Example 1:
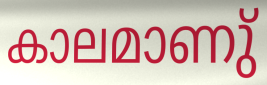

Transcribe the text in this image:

കാലമാണു്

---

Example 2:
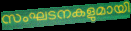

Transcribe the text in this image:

സംഘടനകളുമായി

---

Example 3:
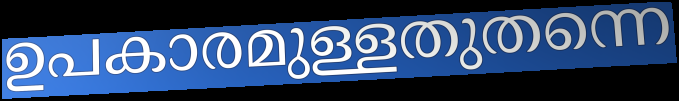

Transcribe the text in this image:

ഉപകാരമുള്ളതുതന്നെ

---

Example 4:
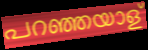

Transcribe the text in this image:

പറഞ്ഞയാള്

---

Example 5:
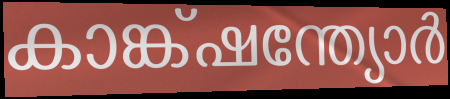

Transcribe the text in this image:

കാങ്ക്ഷന്ത്യോർ